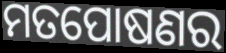
ମତପୋଷଣର